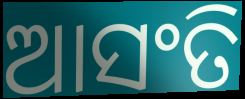
ଆସଂତି